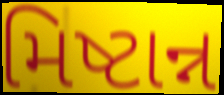
મિષ્ટાન્ન